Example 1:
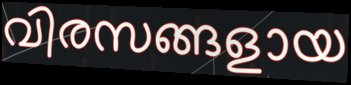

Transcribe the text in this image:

വിരസങ്ങളായ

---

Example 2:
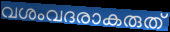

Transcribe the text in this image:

വശംവദരാകരുത്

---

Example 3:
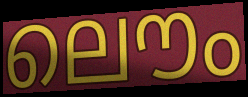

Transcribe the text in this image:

ലൌം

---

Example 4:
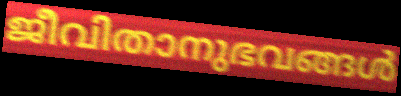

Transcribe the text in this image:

ജീവിതാനുഭവങ്ങൾ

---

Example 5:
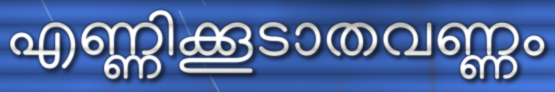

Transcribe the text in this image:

എണ്ണിക്കൂടാതവണ്ണം